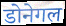
डोनेगल